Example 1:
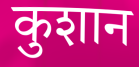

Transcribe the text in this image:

कुशान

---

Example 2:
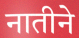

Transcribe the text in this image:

नातीने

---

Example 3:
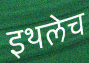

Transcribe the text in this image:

इथलेच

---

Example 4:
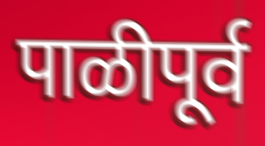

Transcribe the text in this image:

पाळीपूर्व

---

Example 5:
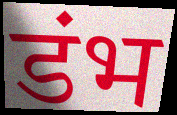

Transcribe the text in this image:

डंभ